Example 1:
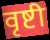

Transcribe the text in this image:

वृष्टी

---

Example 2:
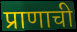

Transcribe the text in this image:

प्राणाची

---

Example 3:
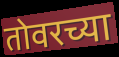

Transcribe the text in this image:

तोवरच्या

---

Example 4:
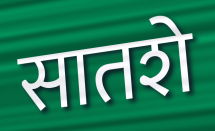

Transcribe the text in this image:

सातशे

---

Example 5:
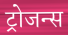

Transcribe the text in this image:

ट्रोजन्स